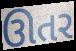
ઊતર